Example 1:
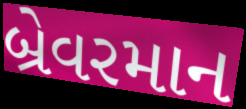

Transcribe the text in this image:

બ્રેવરમાન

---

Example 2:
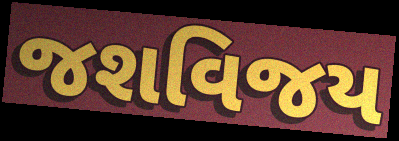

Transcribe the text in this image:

જશવિજય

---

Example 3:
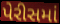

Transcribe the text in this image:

પેરીસમાં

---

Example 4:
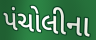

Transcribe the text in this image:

પંચોલીના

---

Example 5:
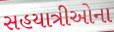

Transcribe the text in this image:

સહયાત્રીઓના